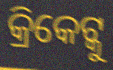
କ୍ରିକେଟ୍କୁ